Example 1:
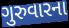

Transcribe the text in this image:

ગુરુવારના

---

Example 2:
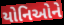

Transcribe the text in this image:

યોનિઓને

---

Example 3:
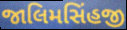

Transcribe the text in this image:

જાલિમસિંહજી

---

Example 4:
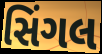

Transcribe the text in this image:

સિંગલ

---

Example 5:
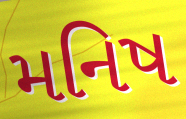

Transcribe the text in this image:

મનિષ